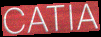
CATIA